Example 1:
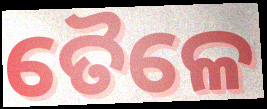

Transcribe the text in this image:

ତୈଳେ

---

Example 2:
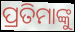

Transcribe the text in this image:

ପ୍ରତିମାଙ୍କୁ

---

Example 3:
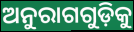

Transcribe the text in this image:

ଅନୁରାଗଗୁଡ଼ିକୁ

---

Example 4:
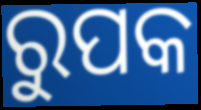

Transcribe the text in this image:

ରୁପକ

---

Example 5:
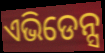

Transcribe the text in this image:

ଏଭିଡେନ୍ସ